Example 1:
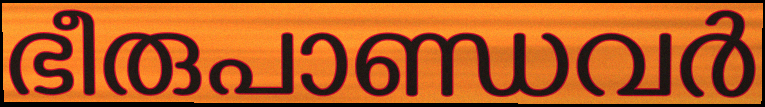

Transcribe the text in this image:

ഭീരുപാണ്ഡവർ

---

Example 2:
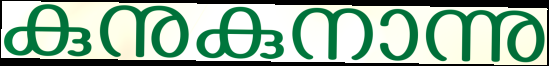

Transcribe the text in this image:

കുനുകുനാന്നു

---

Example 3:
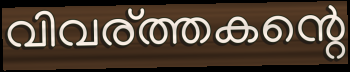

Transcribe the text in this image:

വിവര്ത്തകന്റെ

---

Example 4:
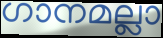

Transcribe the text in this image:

ഗാനമല്ലാ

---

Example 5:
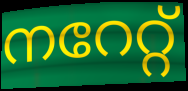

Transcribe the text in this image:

നറേറ്റ്